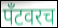
पँटवरच